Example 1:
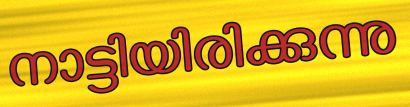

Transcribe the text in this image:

നാട്ടിയിരിക്കുന്നു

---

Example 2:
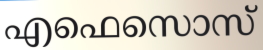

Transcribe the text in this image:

എഫെസൊസ്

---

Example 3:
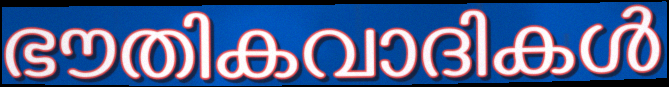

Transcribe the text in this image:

ഭൗതികവാദികൾ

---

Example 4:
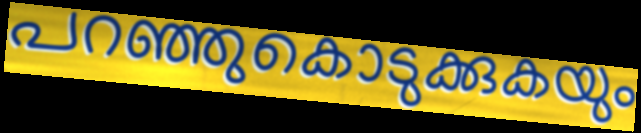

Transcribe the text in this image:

പറഞ്ഞുകൊടുക്കുകയും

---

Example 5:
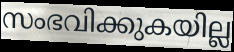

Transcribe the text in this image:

സംഭവിക്കുകയില്ല